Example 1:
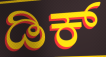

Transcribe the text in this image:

ಡಿಕ್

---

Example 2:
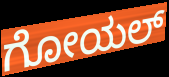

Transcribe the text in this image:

ಗೋಯಲ್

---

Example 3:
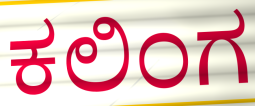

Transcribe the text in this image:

ಕಲಿಂಗ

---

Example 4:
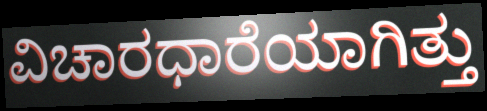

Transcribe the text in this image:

ವಿಚಾರಧಾರೆಯಾಗಿತ್ತು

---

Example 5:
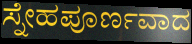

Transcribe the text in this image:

ಸ್ನೇಹಪೂರ್ಣವಾದ